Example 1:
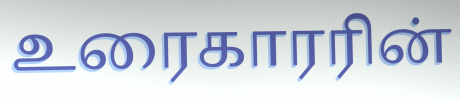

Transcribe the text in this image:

உரைகாரரின்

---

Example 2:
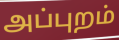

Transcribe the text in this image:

அப்புறம்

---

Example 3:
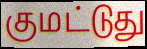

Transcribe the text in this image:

குமட்டுது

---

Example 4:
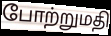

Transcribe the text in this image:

போற்றுமதி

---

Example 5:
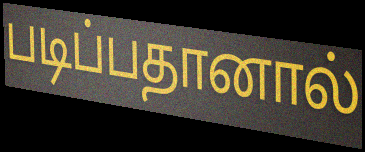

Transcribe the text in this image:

படிப்பதானால்